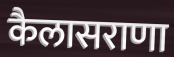
कैलासराणा